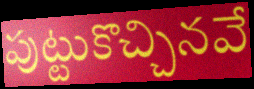
పుట్టుకొచ్చినవే